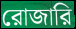
রোজারি